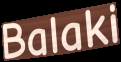
Balaki